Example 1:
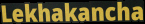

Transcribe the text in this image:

Lekhakancha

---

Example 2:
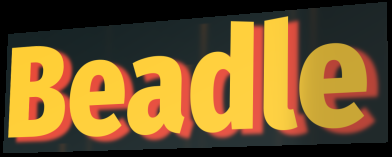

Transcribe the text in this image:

Beadle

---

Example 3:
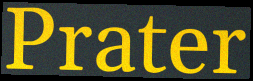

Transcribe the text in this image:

Prater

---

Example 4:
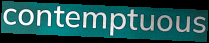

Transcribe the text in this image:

contemptuous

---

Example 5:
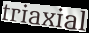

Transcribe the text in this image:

triaxial